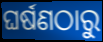
ଘର୍ଷଣଠାରୁ